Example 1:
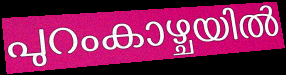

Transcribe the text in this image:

പുറംകാഴ്ചയിൽ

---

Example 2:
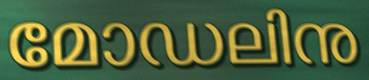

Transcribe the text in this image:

മോഡലിനു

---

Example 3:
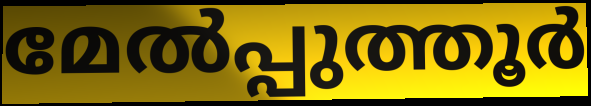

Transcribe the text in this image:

മേൽപ്പുത്തൂർ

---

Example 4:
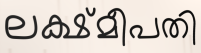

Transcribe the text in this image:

ലക്ഷ്മീപതി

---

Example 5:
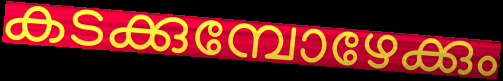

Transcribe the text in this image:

കടക്കുമ്പോഴേക്കും